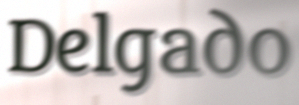
Delgado